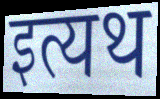
इत्यथ